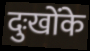
दुःखोंके